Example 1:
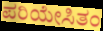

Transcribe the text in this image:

ಪರಿಯೇಸಿತಂ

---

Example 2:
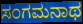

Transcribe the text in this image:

ಸಂಗಮನಾಥ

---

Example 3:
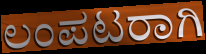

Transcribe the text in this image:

ಲಂಪಟರಾಗಿ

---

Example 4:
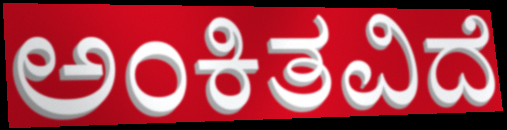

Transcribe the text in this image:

ಅಂಕಿತವಿದೆ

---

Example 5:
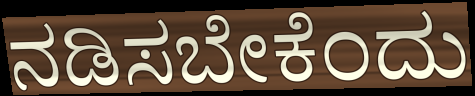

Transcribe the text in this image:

ನಡಿಸಬೇಕೆಂದು